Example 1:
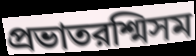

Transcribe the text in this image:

প্রভাতরশ্মিসম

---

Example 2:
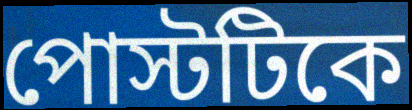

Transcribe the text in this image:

পোস্টটিকে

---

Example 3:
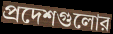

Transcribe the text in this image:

প্রদেশগুলোর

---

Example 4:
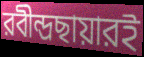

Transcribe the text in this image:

রবীন্দ্রছায়ারই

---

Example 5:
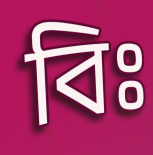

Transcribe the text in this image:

বিঃ